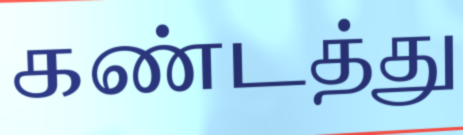
கண்டத்து